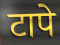
टापे